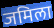
जमिला